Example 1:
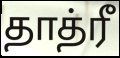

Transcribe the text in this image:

தாத்ரீ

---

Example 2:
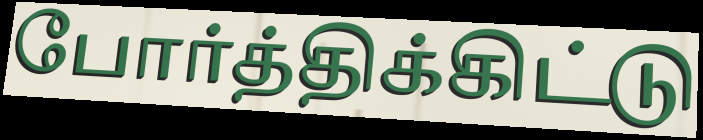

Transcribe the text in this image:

போர்த்திக்கிட்டு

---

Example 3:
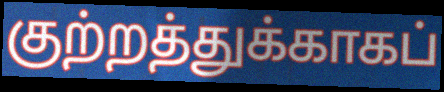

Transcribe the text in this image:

குற்றத்துக்காகப்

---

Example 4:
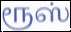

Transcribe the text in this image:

ரூஸ்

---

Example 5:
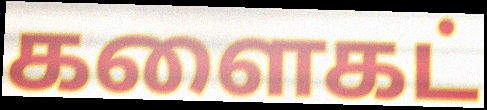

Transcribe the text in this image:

களைகட்